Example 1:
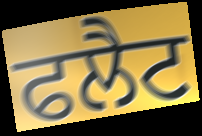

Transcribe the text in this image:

ਫਲੈਟ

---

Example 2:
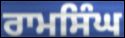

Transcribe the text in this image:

ਰਾਮਸਿੰਘ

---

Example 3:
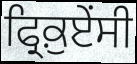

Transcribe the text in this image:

ਫ੍ਰਿਕ਼ੁਏਂਸੀ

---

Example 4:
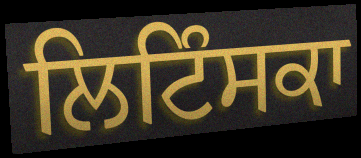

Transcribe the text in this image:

ਲਿਟਿੰਸਕਾ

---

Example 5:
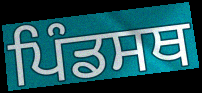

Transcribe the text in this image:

ਪਿੰਡਸਥ